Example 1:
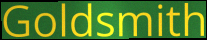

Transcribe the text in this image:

Goldsmith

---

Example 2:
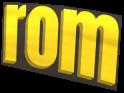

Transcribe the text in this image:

rom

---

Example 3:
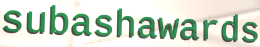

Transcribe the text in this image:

subashawards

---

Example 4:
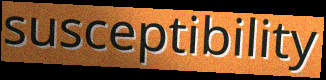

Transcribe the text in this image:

susceptibility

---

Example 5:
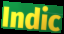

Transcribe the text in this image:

Indic